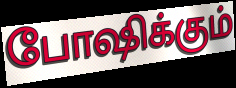
போஷிக்கும்